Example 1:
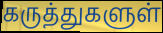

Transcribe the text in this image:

கருத்துகளுள்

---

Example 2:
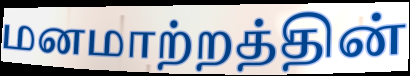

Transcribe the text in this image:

மனமாற்றத்தின்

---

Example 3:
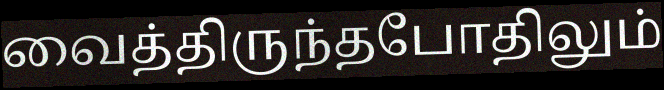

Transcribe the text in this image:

வைத்திருந்தபோதிலும்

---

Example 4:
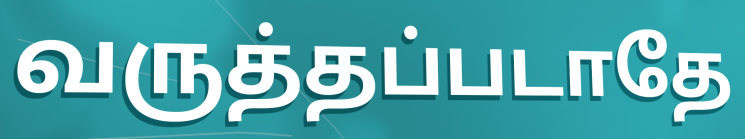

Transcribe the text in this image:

வருத்தப்படாதே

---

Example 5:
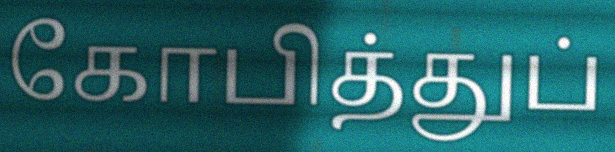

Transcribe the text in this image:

கோபித்துப்